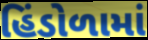
હિંડોળામાં